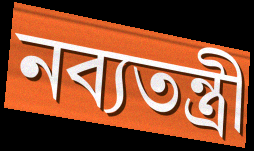
নব্যতন্ত্রী